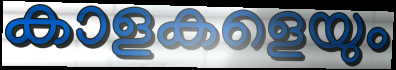
കാളകളെയും